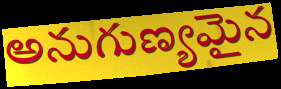
అనుగుణ్యమైన